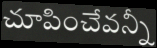
చూపించేవన్నీ